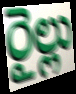
రైల్లు